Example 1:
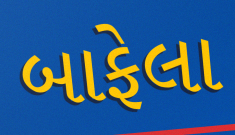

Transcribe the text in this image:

બાફેલા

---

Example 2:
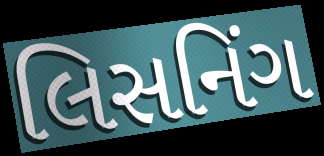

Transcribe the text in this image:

લિસનિંગ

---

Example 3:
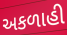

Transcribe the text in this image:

અકળાહી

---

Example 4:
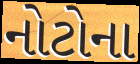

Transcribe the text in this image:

નોટોના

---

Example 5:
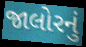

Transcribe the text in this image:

જાલોરનું